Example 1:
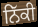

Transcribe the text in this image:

ਨਿੱਕੀ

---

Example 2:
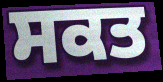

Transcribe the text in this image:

ਸਕਤ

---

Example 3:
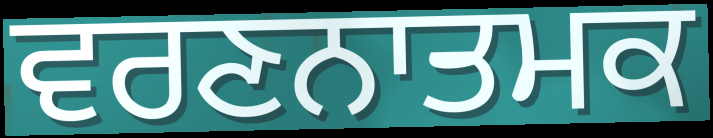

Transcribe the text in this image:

ਵਰਣਨਾਤਮਕ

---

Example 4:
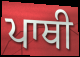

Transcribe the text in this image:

ਪਾਥੀ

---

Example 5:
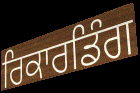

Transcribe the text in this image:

ਰਿਕਾਰਡਿੰਗ